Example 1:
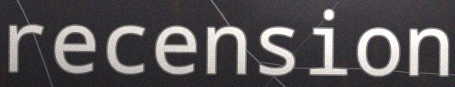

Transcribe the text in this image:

recension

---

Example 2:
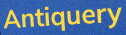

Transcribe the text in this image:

Antiquery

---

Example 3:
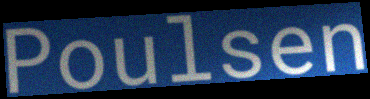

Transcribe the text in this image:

Poulsen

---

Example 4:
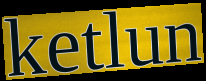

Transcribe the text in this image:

ketlun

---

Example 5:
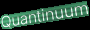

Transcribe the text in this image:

Quantinuum